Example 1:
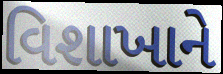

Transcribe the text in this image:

વિશાખાને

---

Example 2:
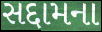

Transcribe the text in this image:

સદ્દામના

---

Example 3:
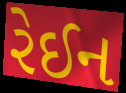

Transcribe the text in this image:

રેઈન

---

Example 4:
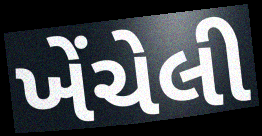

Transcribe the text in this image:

ખેંચેલી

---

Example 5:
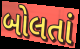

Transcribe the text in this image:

બોલતાં